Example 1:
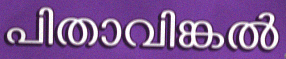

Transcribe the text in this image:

പിതാവിങ്കൽ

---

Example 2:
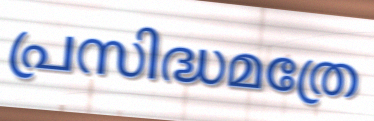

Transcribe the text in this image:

പ്രസിദ്ധമത്രേ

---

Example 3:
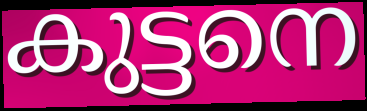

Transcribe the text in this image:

കുട്ടനെ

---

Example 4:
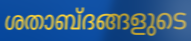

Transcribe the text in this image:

ശതാബ്ദങ്ങളുടെ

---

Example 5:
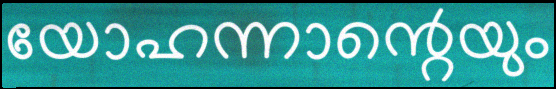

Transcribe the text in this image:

യോഹന്നാന്റെയും